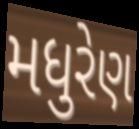
મધુરેણ